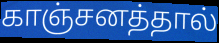
காஞ்சனத்தால்